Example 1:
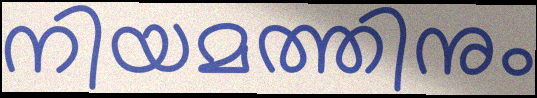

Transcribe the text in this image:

നിയമത്തിനും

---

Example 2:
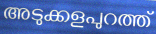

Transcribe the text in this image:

അടുക്കളപുറത്ത്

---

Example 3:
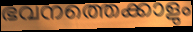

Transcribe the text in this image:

ഭവനത്തെക്കാളും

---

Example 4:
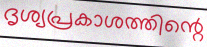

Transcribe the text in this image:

ദൃശ്യപ്രകാശത്തിന്റെ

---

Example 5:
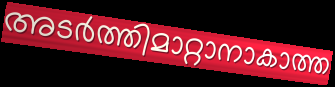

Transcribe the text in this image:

അടർത്തിമാറ്റാനാകാത്ത